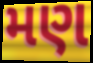
મણ